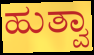
ಹುತ್ವಾ